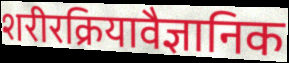
शरीरक्रियावैज्ञानिक